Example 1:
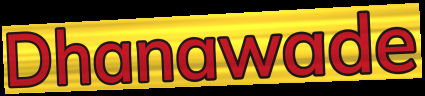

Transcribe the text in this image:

Dhanawade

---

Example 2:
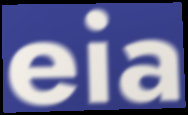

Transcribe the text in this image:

eia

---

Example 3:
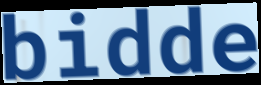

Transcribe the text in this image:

bidde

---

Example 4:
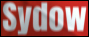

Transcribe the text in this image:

Sydow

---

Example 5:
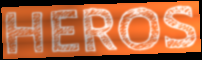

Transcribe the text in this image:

HEROS